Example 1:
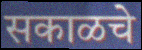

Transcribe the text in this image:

सकाळचे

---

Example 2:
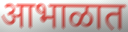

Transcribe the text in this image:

आभाळात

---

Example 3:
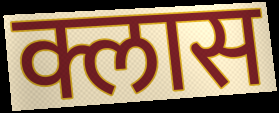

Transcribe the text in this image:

क्लास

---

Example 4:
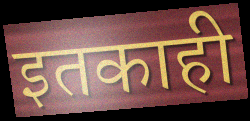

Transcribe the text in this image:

इतकाही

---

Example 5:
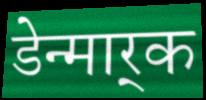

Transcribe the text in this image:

डेन्मार्क